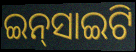
ଇନ୍‌ସାଇଟି